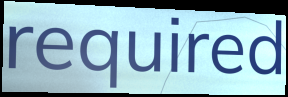
required